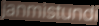
janmistundi